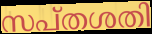
സപ്തശതി